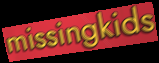
missingkids